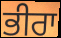
ਭੀਰਾ